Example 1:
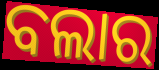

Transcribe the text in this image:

ବଲାର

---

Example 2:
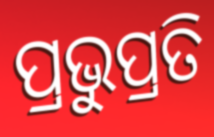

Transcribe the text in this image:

ପ୍ରଭୁପ୍ରତି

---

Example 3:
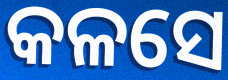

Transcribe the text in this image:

କଳସେ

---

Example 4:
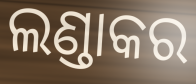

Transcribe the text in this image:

ଲଣ୍ଡାକର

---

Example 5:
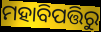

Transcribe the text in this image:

ମହାବିପତ୍ତିରୁ